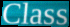
Class